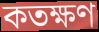
কতক্ষণ